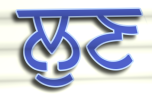
ਲੁਣ